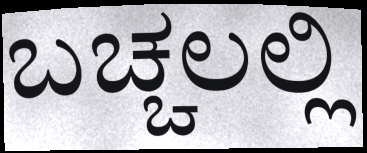
ಬಚ್ಚಲಲ್ಲಿ